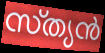
സ്‌ത്യൻ